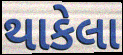
થાકેલા